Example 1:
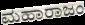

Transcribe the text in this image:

ಮಹಾರಾಜಂ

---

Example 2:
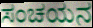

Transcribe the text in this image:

ಸಂಚಯನ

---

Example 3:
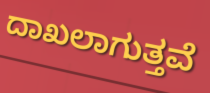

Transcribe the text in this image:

ದಾಖಲಾಗುತ್ತವೆ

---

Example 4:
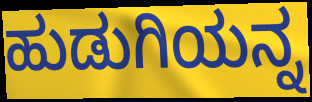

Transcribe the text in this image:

ಹುಡುಗಿಯನ್ನ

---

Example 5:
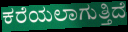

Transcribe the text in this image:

ಕರೆಯಲಾಗುತ್ತಿದೆ